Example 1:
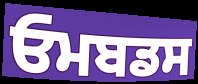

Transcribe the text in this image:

ਓਮਬਡਸ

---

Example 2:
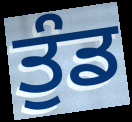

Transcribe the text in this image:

ਤੁੰਡ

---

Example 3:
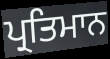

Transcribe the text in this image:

ਪ੍ਰਤਿਮਾਨ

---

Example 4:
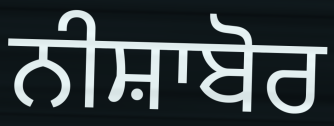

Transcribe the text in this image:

ਨੀਸ਼ਾਬੋਰ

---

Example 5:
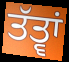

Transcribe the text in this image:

ਤੱਤ੍ਵਾਂ